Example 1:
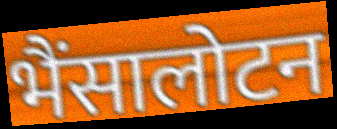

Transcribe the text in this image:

भैंसालोटन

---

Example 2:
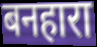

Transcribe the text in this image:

बनहारा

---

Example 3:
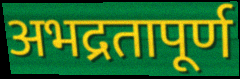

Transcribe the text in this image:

अभद्रतापूर्ण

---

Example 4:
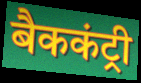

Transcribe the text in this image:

बैककंट्री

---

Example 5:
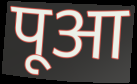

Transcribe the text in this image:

पूआ